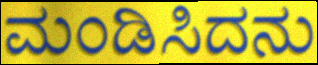
ಮಂಡಿಸಿದನು